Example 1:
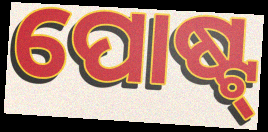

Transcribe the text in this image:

ପୋଷ୍ଟ୍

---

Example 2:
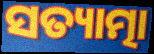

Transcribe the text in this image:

ସତ୍ୟାତ୍ମା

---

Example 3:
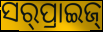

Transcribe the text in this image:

ସର୍‌ପ୍ରାଇଜ୍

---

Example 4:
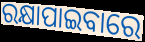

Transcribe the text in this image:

ରକ୍ଷାପାଇବାରେ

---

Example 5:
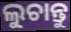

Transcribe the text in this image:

ଲୁଚାନ୍ତୁ